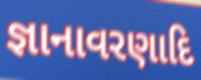
જ્ઞાનાવરણાદિ